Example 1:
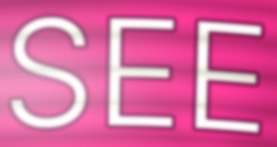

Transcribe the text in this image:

SEE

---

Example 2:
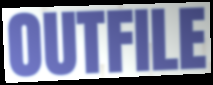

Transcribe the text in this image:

OUTFILE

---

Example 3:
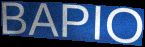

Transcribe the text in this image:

BAPIO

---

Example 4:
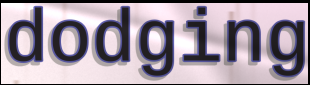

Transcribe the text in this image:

dodging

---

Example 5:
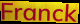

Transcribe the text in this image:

Franck